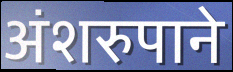
अंशरुपाने